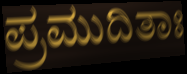
ಪ್ರಮುದಿತಾಃ